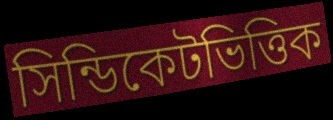
সিন্ডিকেটভিত্তিক